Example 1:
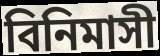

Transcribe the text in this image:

বিনিমাসী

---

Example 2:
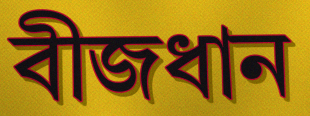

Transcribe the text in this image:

বীজধান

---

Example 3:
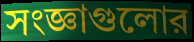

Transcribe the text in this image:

সংজ্ঞাগুলোর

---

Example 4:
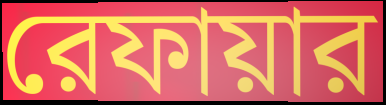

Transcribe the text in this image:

রেফায়ার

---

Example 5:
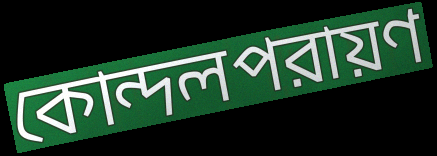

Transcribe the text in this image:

কোন্দলপরায়ণ